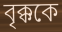
বৃক্ককে